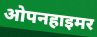
ओपनहाइमर